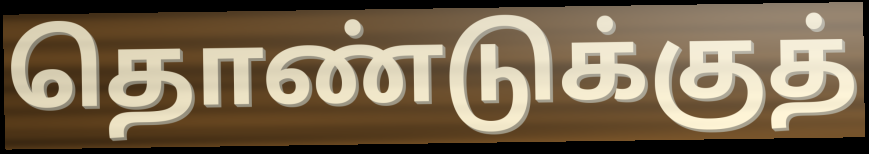
தொண்டுக்குத்